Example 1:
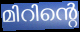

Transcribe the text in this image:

മിറിന്റെ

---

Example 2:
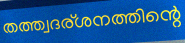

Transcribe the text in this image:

തത്ത്വദര്ശനത്തിന്റെ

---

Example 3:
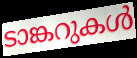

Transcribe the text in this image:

ടാങ്കറുകൾ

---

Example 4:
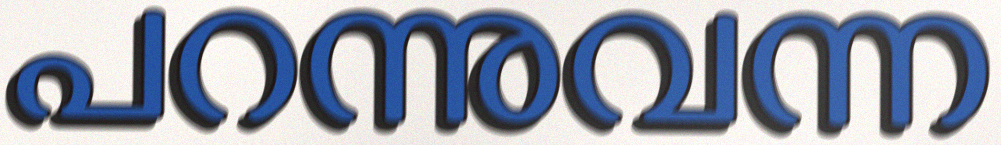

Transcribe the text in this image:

പറന്നുവന്ന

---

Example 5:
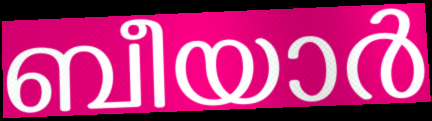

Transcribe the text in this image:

ബീയാർ